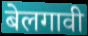
बेलगावी